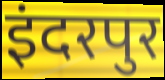
इंदरपुर